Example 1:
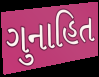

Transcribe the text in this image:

ગુનાહિત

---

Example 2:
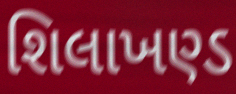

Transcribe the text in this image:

શિલાખણ્ડ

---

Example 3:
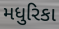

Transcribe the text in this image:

મધુરિકા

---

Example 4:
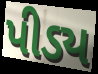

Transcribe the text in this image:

પીડ્ય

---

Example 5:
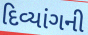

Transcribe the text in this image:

દિવ્યાંગની